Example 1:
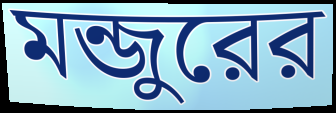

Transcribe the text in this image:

মন্জুরের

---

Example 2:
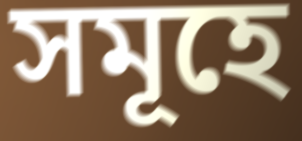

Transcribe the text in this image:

সমূহে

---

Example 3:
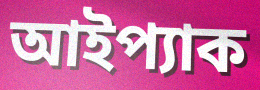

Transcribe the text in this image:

আইপ্যাক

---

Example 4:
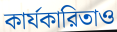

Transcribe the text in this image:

কার্যকারিতাও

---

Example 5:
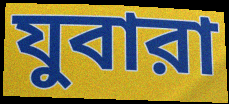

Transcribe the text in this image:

যুবারা